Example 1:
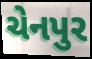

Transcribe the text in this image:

ચેનપુર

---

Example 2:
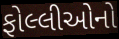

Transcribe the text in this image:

ફોલ્લીઓનો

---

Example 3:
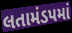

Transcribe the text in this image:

લતામંડપમાં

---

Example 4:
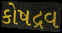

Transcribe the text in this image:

કોષદ્રવ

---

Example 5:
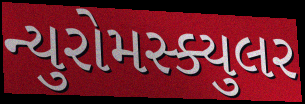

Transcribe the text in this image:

ન્યુરોમસ્ક્યુલર